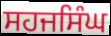
ਸਹਜਸਿੰਘ